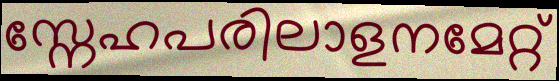
സ്നേഹപരിലാളനമേറ്റ്